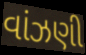
વાંઝણી